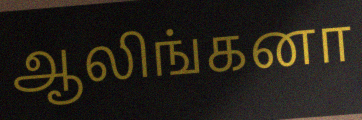
ஆலிங்கனா